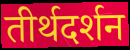
तीर्थदर्शन